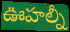
ఊహల్నీ